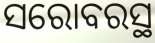
ସରୋବରସ୍ଥ